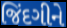
જિંદગીને